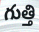
గుత్తి